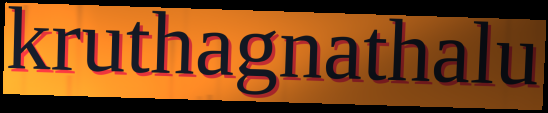
kruthagnathalu